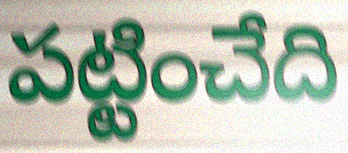
పట్టించేది